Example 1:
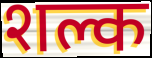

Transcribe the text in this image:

शल्क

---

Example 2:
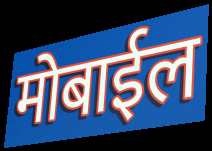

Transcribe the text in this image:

मोबाईल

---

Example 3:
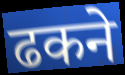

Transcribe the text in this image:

ढकने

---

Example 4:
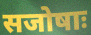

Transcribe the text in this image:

सजोषाः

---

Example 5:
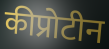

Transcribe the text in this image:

कीप्रोटीन